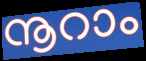
നൂറാം